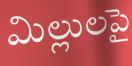
మిల్లులపై